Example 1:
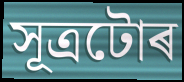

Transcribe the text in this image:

সূত্ৰটোৰ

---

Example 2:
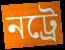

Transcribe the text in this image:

নট্ৰে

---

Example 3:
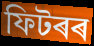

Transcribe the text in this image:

ফিটৰৰ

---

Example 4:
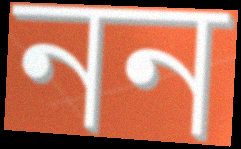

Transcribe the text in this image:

নন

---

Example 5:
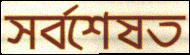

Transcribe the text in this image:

সৰ্বশেষত